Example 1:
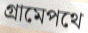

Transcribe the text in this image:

গ্রামেপথে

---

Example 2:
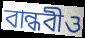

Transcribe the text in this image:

বান্ধবীও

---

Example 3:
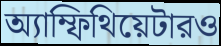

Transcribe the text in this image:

অ্যাম্ফিথিয়েটারও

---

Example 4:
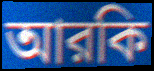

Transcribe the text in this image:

আরকি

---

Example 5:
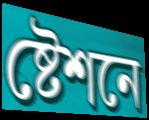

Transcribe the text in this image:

ষ্টেশনে